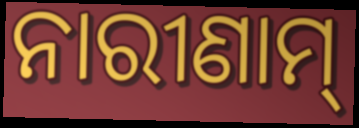
ନାରୀଣାମ୍